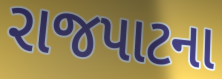
રાજપાટના